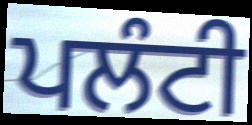
ਪਲੰਟੀ